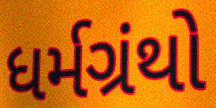
ધર્મગ્રંથો